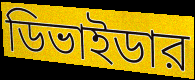
ডিভাইডার